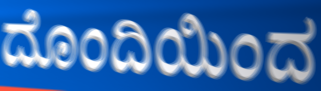
ದೊಂದಿಯಿಂದ